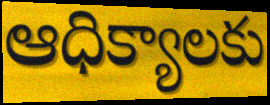
ఆధిక్యాలకు